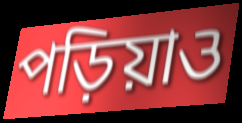
পড়িয়াও